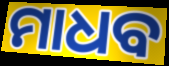
ମାଧବ